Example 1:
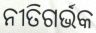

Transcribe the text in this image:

ନୀତିଗର୍ଭକ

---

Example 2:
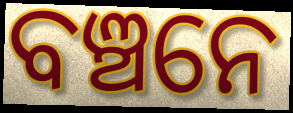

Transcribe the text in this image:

ବଞ୍ଚନେ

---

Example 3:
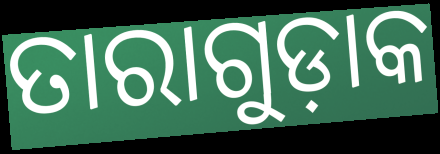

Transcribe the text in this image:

ତାରାଗୁଡ଼ାକ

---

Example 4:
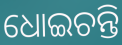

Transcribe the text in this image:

ଧୋଇଚନ୍ତି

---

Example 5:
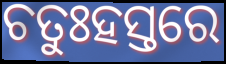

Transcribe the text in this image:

ଚତୁଃହସ୍ତରେ